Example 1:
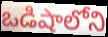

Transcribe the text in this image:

ఒడిషాలోని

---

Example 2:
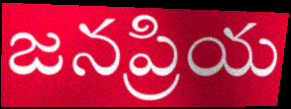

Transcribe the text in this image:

జనప్రియ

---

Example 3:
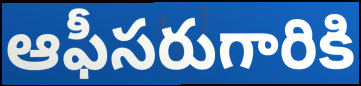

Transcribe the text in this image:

ఆఫీసరుగారికి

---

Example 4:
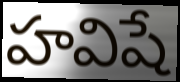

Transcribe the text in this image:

హవిషే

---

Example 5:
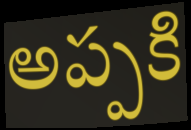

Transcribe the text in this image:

అప్పకి